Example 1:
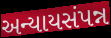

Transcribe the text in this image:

અન્યાયસંપન્ન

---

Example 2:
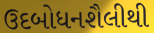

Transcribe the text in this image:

ઉદબોધનશૈલીથી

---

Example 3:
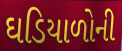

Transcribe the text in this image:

ઘડિયાળોની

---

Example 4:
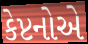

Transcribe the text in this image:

કેપ્ટનોએ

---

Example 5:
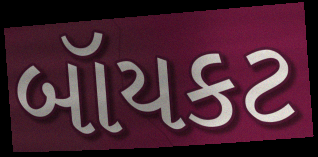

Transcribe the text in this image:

બૉયકટ